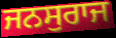
ਜਨਸੁਰਾਜ